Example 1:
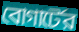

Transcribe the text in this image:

বোগার্টের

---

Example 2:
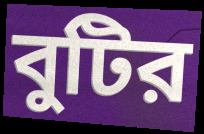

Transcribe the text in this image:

বুটির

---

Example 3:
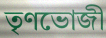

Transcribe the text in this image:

তৃণভোজী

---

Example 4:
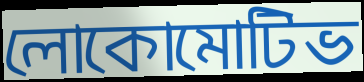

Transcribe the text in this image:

লোকোমোটিভ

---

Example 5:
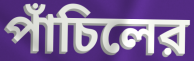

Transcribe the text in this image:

পাঁচিলের